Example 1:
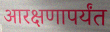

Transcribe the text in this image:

आरक्षणापर्यंत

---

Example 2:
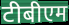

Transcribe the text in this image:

टीबीएम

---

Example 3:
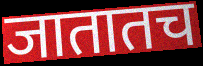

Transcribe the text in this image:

जातातच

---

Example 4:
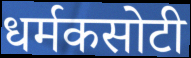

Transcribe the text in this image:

धर्मकसोटी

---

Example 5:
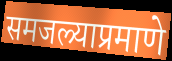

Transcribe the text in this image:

समजल्याप्रमाणे